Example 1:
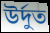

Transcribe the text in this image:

উৰ্দুত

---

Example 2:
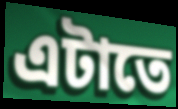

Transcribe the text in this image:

এটাতে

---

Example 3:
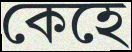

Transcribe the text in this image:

কেহে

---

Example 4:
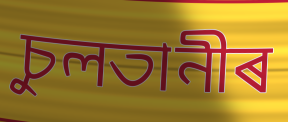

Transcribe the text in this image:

চুলতানীৰ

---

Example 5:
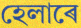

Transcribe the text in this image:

হেলাৰে